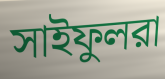
সাইফুলরা